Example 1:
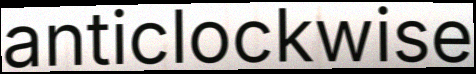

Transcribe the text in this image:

anticlockwise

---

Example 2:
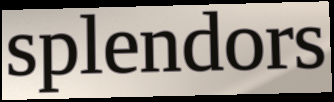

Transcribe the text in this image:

splendors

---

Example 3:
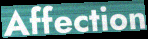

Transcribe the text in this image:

Affection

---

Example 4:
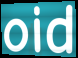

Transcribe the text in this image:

oid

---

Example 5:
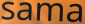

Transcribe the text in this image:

sama